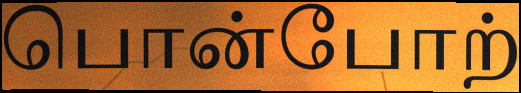
பொன்போற்